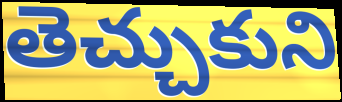
తెచ్చుకుని